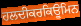
ਹਲਦੀਕਰਕਿਊਮਿਨ